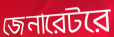
জেনারেটরে